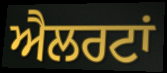
ਐਲਰਟਾਂ